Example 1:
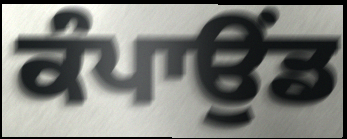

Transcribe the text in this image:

ਕੰਪਾਉਂਡ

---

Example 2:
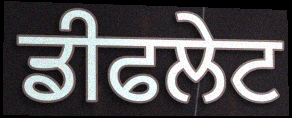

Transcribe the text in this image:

ਡੀਫਲੇਟ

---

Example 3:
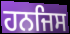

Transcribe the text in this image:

ਹਨਜਿਸ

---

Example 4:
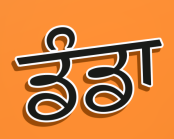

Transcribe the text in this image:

ਡੰਡਾ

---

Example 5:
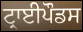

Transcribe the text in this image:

ਟ੍ਰਾਈਪੌਡਸ